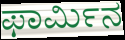
ಫಾರ್ಮಿನ